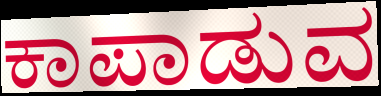
ಕಾಪಾಡುವ